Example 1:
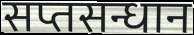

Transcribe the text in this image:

सप्तसन्धान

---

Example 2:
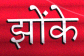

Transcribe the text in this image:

झोंके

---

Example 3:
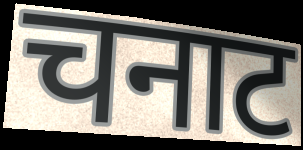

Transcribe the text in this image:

चनाट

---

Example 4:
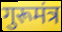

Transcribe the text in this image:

गुरूमंत्र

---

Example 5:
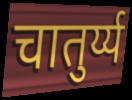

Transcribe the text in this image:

चातुर्य्य